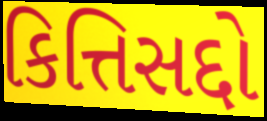
કિત્તિસદ્દો